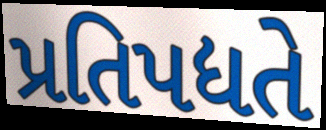
પ્રતિપદ્યતે